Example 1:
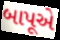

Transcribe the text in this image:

બાપૂએ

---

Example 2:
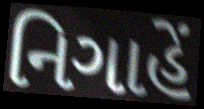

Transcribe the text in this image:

નિગાહેં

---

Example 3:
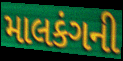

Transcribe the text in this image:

માલકંગની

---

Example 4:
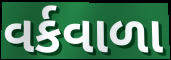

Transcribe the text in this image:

વર્કવાળા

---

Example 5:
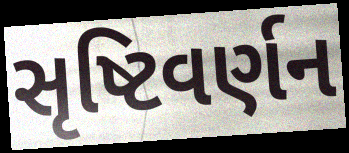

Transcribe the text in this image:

સૃષ્ટિવર્ણન